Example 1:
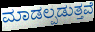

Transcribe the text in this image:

ಮಾಡಲ್ಪಡುತ್ತವೆ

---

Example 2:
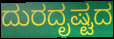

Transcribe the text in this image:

ದುರದೃಷ್ಟದ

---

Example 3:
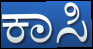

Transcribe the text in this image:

ಕಾಸಿ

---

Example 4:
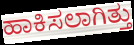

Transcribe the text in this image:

ಹಾಕಿಸಲಾಗಿತ್ತು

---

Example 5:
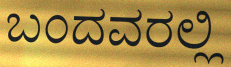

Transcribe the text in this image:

ಬಂದವರಲ್ಲಿ